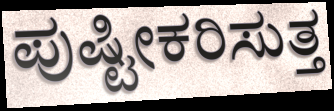
ಪುಷ್ಟೀಕರಿಸುತ್ತ